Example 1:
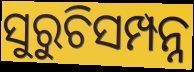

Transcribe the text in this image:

ସୁରୁଚିସମ୍ପନ୍ନ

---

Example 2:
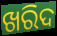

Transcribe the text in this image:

ଖରିଦ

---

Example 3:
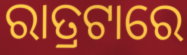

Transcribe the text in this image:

ରାତ୍ରଟାରେ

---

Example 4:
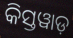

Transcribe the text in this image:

କିସ୍ତୱାଡ଼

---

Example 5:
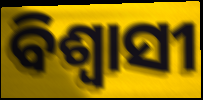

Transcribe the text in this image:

ବିଶ୍ୱାସୀ